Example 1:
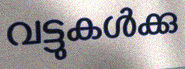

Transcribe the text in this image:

വട്ടുകൾക്കു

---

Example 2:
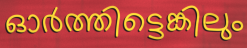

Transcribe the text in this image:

ഓർത്തിട്ടെങ്കിലും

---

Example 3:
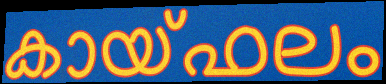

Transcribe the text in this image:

കായ്ഫലം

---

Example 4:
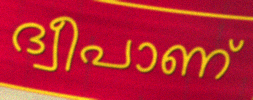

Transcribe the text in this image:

ദ്വീപാണ്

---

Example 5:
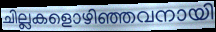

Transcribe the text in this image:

ചില്ലകളൊഴിഞ്ഞവനായി